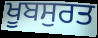
ਖੂਬਸੁਰਤ